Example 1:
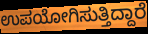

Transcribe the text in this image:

ಉಪಯೋಗಿಸುತ್ತಿದ್ದಾರೆ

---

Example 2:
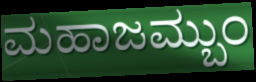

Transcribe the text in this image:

ಮಹಾಜಮ್ಬುಂ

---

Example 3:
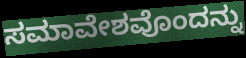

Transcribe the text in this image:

ಸಮಾವೇಶವೊಂದನ್ನು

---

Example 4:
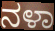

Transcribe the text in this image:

ನಳಾ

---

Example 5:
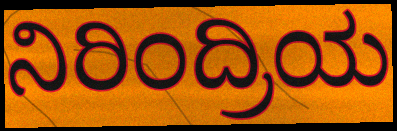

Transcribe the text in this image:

ನಿರಿಂದ್ರಿಯ